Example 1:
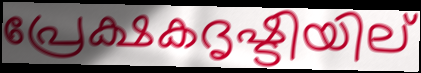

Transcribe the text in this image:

പ്രേക്ഷകദൃഷ്ടിയില്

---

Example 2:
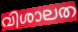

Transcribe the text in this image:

വിശാലത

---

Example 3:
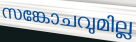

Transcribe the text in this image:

സങ്കോചവുമില്ല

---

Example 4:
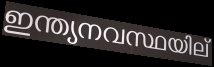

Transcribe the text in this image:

ഇന്ത്യനവസ്ഥയില്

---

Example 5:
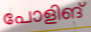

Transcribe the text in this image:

പോളിങ്